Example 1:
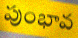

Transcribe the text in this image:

పుంభావ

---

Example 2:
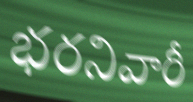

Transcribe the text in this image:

భరనివారీ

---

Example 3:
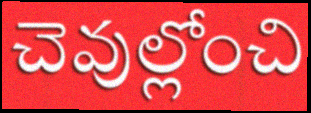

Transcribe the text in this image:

చెవుల్లోంచి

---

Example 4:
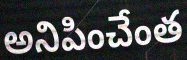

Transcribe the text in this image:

అనిపించేంత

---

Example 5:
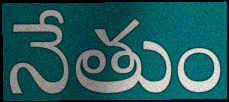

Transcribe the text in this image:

నేతుం